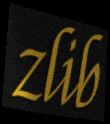
zlib